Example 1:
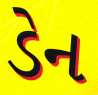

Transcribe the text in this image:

ડેન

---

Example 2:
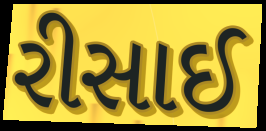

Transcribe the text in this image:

રીસાઈ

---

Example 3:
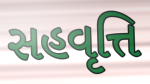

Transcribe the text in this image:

સહવૃત્તિ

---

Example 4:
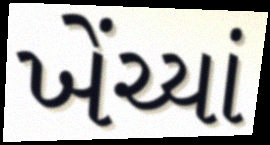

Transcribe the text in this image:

ખેંચ્યાં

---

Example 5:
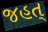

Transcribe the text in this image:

જહત્